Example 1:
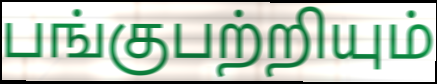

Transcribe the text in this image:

பங்குபற்றியும்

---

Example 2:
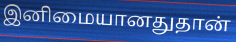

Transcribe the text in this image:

இனிமையானதுதான்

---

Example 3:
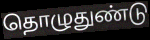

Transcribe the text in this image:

தொழுதுண்டு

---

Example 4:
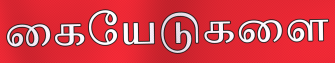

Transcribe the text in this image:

கையேடுகளை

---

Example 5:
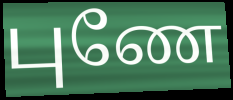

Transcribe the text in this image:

புணே